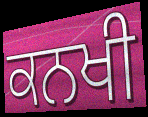
ਕਨਖੀ